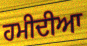
ਹਮੀਦੀਆ